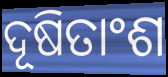
ଦୂଷିତାଂଶ